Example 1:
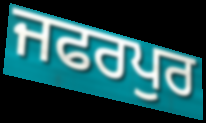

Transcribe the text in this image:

ਜਫਰਪੁਰ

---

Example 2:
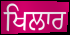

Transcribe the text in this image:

ਖਿਲਾਰ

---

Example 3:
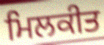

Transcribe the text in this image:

ਮਿਲਕੀਤ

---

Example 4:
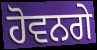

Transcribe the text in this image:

ਹੋਵਨਗੇ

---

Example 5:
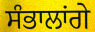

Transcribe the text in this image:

ਸੰਭਾਲਾਂਗੇ